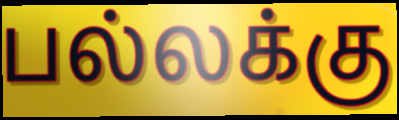
பல்லக்கு